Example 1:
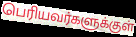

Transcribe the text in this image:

பெரியவர்களுக்குள்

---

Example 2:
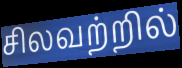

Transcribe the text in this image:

சிலவற்றில்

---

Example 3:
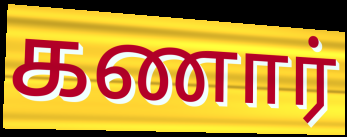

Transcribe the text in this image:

கணார்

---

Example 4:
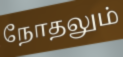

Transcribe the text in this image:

நோதலும்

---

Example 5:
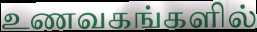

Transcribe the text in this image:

உணவகங்களில்